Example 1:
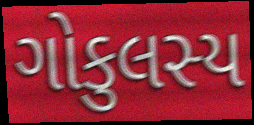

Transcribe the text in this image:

ગોકુલસ્ય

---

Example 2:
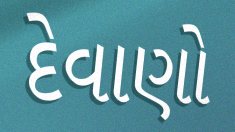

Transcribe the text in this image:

દેવાણો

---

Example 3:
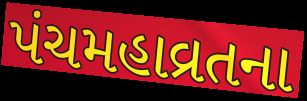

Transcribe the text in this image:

પંચમહાવ્રતના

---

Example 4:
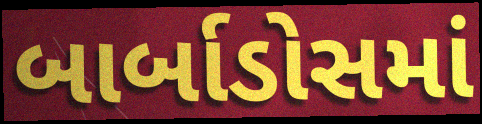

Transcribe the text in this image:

બાર્બાડોસમાં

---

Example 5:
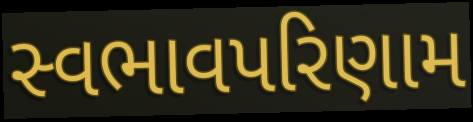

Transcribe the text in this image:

સ્વભાવપરિણામ